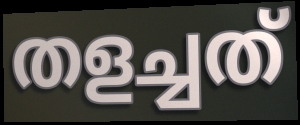
തളച്ചത്